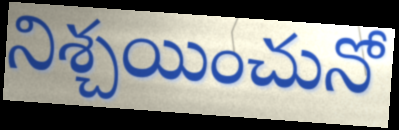
నిశ్చయించునో